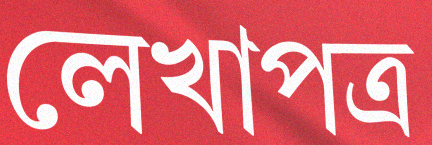
লেখাপত্র